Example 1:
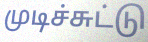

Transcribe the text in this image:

முடிச்சுட்டு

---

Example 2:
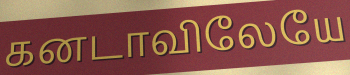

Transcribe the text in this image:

கனடாவிலேயே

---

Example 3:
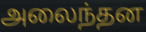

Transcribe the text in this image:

அலைந்தன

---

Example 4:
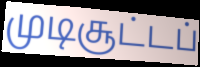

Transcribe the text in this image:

முடிசூட்டப்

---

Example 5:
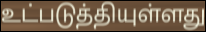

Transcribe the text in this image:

உட்படுத்தியுள்ளது